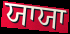
ਯਾਯਾ